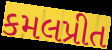
કમલપ્રીત